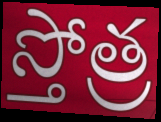
స్తోత్ర